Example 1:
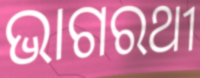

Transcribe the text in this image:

ଭାଗରଥୀ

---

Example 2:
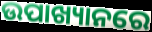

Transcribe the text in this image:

ଉପାଖ୍ୟାନରେ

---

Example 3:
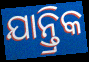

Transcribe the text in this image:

ଯାନ୍ତ୍ରିକ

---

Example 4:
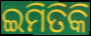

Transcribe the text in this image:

ଇମିତିକି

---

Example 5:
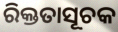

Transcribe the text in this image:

ରିକ୍ତତାସୂଚକ